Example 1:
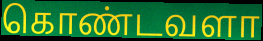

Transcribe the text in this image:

கொண்டவளா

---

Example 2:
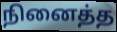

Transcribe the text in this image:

நினைத்த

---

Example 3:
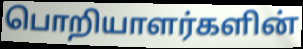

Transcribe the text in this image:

பொறியாளர்களின்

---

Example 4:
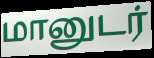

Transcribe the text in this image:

மானுடர்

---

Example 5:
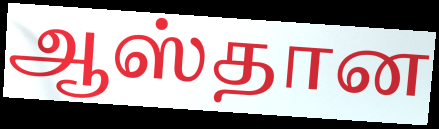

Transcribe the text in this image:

ஆஸ்தான